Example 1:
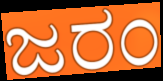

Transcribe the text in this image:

ಜರಂ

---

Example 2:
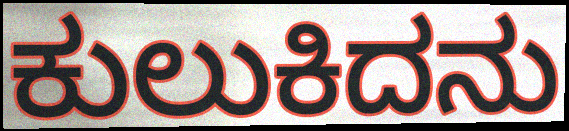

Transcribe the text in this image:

ಕುಲುಕಿದನು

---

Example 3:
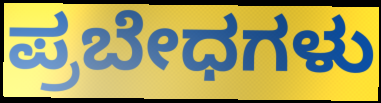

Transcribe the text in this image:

ಪ್ರಬೇಧಗಳು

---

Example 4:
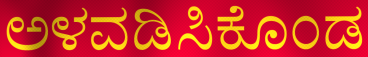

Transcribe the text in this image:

ಅಳವಡಿಸಿಕೊಂಡ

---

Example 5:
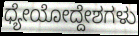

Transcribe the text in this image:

ಧ್ಯೇಯೋದ್ದೇಶಗಳು